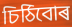
চিঠিবোৰ